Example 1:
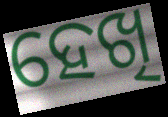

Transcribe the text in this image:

ହେଖି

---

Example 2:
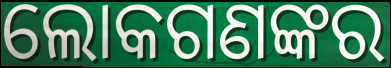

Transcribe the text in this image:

ଲୋକଗଣଙ୍କର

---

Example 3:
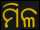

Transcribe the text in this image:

ମିଳ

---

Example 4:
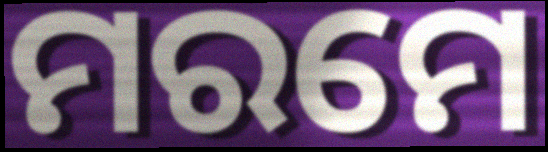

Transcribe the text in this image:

ମରମେ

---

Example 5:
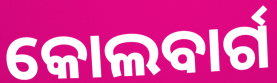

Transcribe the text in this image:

କୋଲବାର୍ଗ